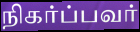
நிகர்ப்பவர்